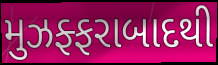
મુઝફ્ફરાબાદથી